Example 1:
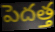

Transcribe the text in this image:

పెదత్త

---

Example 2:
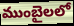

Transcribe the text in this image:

ముంబైలలో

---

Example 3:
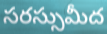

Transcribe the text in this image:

సరస్సుమీద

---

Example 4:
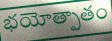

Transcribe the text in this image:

భయోత్పాతం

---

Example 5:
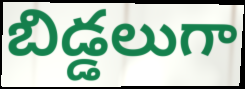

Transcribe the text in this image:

బిడ్డలుగా